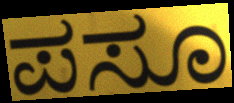
ಪಸೂ